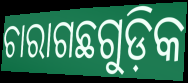
ଚାରାଗଛଗୁଡ଼ିକ